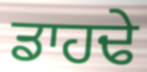
ਡਾਹਢੇ